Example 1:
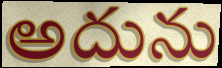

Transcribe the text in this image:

అదును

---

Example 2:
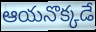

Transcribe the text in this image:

ఆయనొక్కడే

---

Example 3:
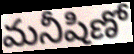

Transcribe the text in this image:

మనీషిణో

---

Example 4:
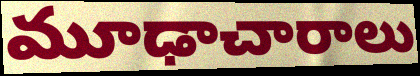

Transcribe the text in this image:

మూఢాచారాలు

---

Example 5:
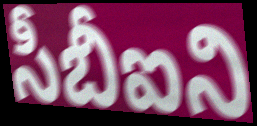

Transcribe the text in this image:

సీబీఐని